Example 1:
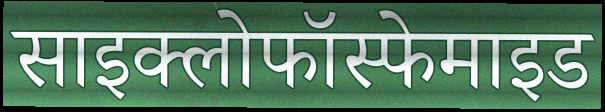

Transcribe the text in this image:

साइक्लोफॉस्फेमाइड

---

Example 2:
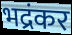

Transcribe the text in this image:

भद्रंकर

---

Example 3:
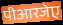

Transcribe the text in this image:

पीआरजेए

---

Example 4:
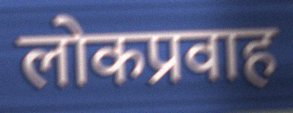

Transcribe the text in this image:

लोकप्रवाह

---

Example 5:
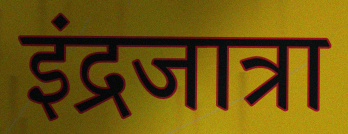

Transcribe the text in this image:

इंद्रजात्रा